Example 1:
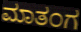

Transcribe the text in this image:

ಮಾತಂಗ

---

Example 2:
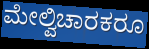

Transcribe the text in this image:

ಮೇಲ್ವಿಚಾರಕರೂ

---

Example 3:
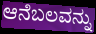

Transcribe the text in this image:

ಆನೆಬಲವನ್ನು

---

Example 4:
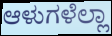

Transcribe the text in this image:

ಆಳುಗಳೆಲ್ಲಾ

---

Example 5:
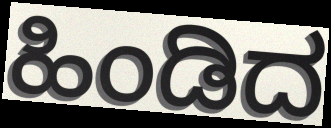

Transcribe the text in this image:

ಹಿಂಡಿದ